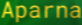
Aparna